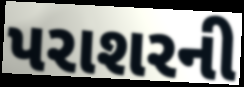
પરાશરની